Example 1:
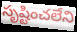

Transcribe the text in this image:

సృష్టించలేని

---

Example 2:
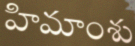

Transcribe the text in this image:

హిమాంశు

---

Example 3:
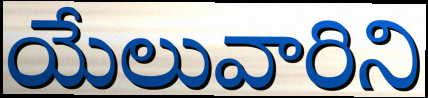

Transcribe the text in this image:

యేలువారిని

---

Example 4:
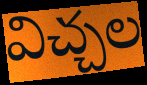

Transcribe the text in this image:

విచ్చల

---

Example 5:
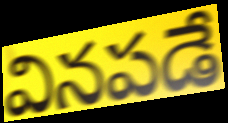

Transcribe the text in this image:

వినపడే